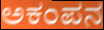
ಅಕಂಪನ